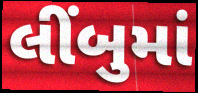
લીંબુમાં